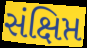
સંક્ષિપ્ત